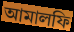
আমালফি